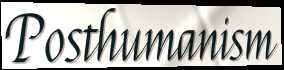
Posthumanism